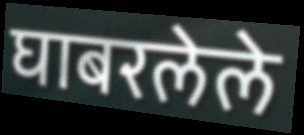
घाबरलेले